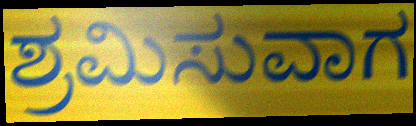
ಶ್ರಮಿಸುವಾಗ